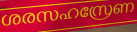
ശരസഹസ്രേണ